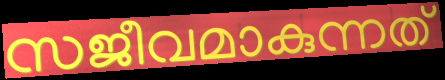
സജീവമാകുന്നത്